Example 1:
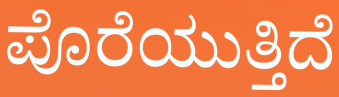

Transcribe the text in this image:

ಪೊರೆಯುತ್ತಿದೆ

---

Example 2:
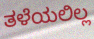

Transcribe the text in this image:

ತಳೆಯಲಿಲ್ಲ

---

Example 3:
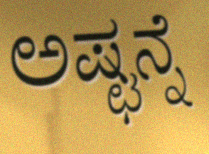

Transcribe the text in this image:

ಅಷ್ಟನ್ನೆ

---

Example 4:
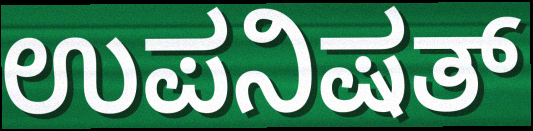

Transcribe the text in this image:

ಉಪನಿಷತ್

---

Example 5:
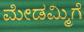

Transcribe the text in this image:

ಮೇಡಮ್ಮಿಗೆ